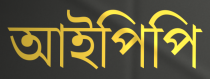
আইপিপি